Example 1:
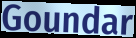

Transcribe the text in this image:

Goundar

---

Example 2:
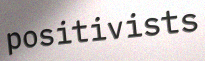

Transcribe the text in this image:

positivists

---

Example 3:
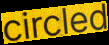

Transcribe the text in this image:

circled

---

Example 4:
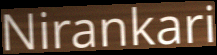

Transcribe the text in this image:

Nirankari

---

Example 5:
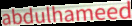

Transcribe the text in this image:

abdulhameed